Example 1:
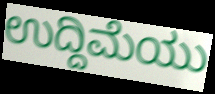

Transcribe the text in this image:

ಉದ್ದಿಮೆಯು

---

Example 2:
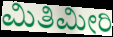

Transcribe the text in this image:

ಮಿತಿಮೀರಿ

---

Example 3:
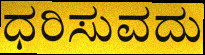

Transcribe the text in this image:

ಧರಿಸುವದು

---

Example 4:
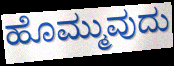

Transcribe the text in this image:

ಹೊಮ್ಮುವುದು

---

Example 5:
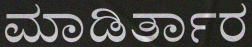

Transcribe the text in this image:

ಮಾಡಿರ್ತಾರ